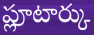
ప్లూటార్కు